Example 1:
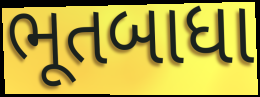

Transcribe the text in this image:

ભૂતબાધા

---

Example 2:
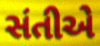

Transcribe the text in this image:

સંતીએ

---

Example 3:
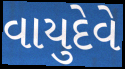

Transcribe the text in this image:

વાયુદેવે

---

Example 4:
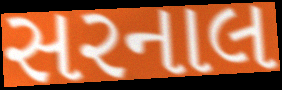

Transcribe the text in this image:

સરનાલ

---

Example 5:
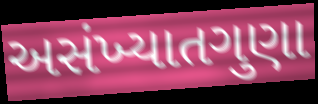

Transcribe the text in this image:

અસંખ્યાતગુણા